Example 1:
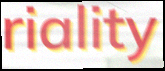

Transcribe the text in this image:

riality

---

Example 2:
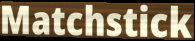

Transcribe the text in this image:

Matchstick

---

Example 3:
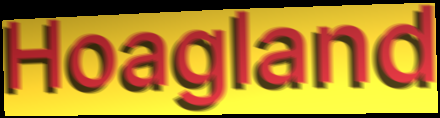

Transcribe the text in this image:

Hoagland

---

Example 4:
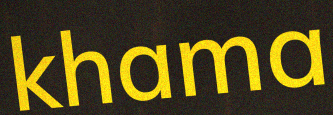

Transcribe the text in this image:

khama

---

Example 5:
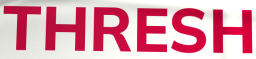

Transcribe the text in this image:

THRESH